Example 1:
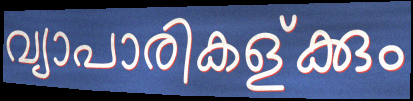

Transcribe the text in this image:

വ്യാപാരികള്ക്കും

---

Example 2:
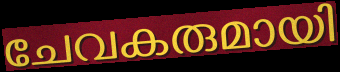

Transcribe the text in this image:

ചേവകരുമായി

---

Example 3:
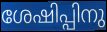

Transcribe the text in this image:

ശേഷിപ്പിനു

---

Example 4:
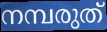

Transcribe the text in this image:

നമ്പരുത്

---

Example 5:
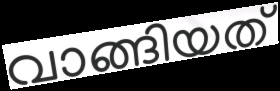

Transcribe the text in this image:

വാങ്ങിയത്